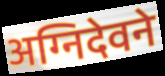
अग्निदेवने